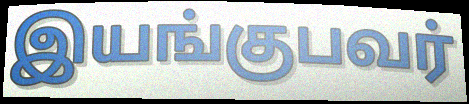
இயங்குபவர்